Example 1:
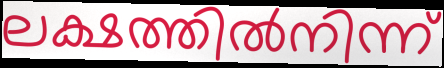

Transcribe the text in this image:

ലക്ഷത്തിൽനിന്ന്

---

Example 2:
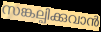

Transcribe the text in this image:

സങ്കല്പിക്കുവാൻ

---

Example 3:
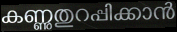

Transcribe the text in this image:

കണ്ണുതുറപ്പിക്കാൻ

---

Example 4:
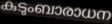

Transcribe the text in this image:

കുടുംബാരാധന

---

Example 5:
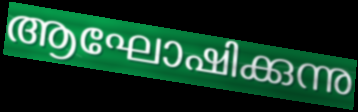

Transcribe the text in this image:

ആഘോഷിക്കുന്നു